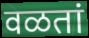
वळतां